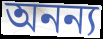
অনন্য